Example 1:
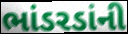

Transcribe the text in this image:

ભાંડરડાંની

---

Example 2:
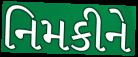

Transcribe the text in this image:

નિમકીને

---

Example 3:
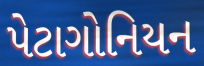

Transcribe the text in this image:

પેટાગોનિયન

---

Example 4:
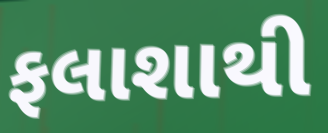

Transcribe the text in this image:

ફલાશાથી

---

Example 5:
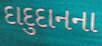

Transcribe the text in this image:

દાદુદાનના